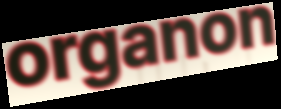
organon